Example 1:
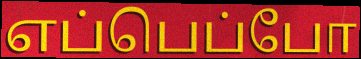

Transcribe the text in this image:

எப்பெப்போ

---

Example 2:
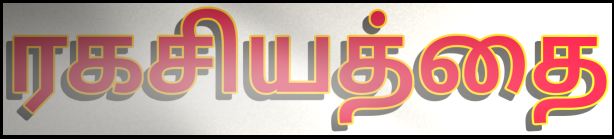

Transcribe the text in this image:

ரகசியத்தை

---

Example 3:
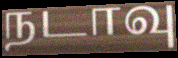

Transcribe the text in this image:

நடாவு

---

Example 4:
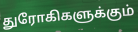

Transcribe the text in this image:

துரோகிகளுக்கும்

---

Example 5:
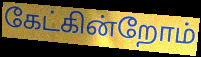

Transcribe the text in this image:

கேட்கின்றோம்